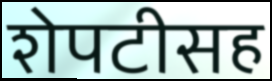
शेपटीसह